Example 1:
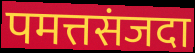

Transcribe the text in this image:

पमत्तसंजदा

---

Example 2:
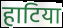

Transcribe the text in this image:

हाटिया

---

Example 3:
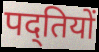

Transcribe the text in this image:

पद्तियों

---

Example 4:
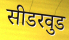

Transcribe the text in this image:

सीडरवुड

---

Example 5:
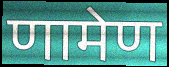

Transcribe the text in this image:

णामेण